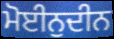
ਮੋਈਨੁਦੀਨ